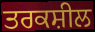
ਤਰਕਸ਼ੀਲ